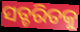
ସତ୍ଚରିତକୁ